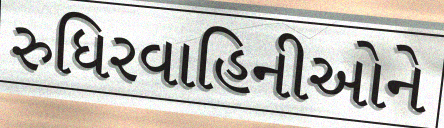
રુધિરવાહિનીઓને